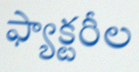
ఫ్యాక్టరీల